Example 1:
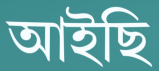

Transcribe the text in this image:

আইছি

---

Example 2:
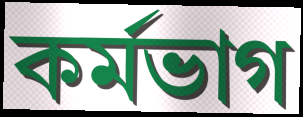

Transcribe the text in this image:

কৰ্মভাগ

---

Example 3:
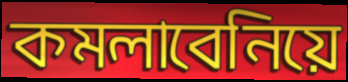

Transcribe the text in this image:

কমলাবেনিয়ে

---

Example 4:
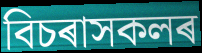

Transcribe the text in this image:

বিচৰাসকলৰ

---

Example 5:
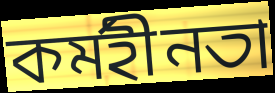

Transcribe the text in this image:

কৰ্মহীনতা